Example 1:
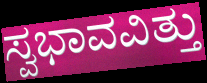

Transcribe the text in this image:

ಸ್ವಭಾವವಿತ್ತು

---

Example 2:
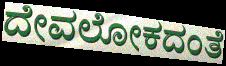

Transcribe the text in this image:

ದೇವಲೋಕದಂತೆ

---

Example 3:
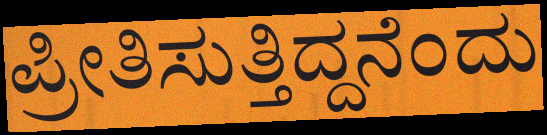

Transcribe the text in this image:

ಪ್ರೀತಿಸುತ್ತಿದ್ದನೆಂದು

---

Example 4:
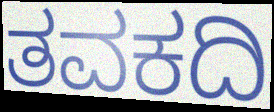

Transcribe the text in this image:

ತವಕದಿ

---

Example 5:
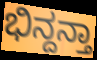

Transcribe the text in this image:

ಭಿನ್ದನ್ತಾ